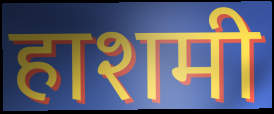
हाशमी